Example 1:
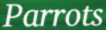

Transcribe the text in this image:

Parrots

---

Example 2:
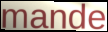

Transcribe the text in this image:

mande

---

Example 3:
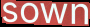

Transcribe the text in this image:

sown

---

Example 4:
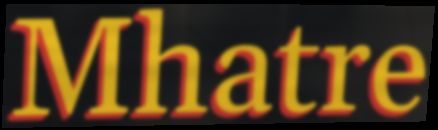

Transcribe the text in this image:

Mhatre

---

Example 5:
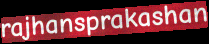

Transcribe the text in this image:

rajhansprakashan